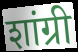
शांग्री